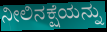
ನೀಲಿನಕ್ಷೆಯನ್ನು